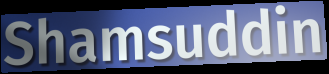
Shamsuddin